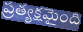
ప్రత్యక్షమైంది